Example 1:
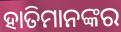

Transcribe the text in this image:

ହାତିମାନଙ୍କର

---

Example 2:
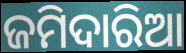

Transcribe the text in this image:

ଜମିଦାରିଆ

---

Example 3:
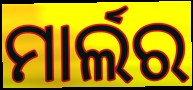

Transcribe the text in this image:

ମାର୍ଲର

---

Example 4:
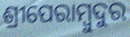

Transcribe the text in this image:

ଶ୍ରୀପେରାମ୍ବୁଦୁର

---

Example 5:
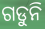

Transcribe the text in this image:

ଗଡୁନି